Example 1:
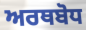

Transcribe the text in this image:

ਅਰਥਬੋਧ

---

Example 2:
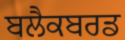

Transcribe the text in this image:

ਬਲੈਕਬਰਡ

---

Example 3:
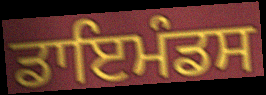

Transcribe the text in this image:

ਡਾਇਮੰਡਸ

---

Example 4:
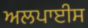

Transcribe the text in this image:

ਅਲਪਾਈਸ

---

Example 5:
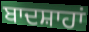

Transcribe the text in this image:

ਬਾਦਸ਼ਾਹਾਂ